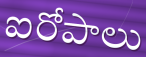
ఐరోపాలు